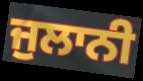
ਜੁਲਾਨੀ